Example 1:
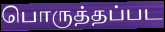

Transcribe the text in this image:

பொருத்தப்பட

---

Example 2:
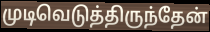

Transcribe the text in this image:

முடிவெடுத்திருந்தேன்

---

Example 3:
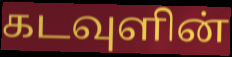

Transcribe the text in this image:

கடவுளின்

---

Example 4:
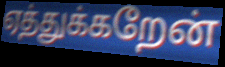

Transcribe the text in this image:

ஏத்துக்கறேன்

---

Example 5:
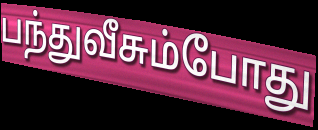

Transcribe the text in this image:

பந்துவீசும்போது